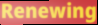
Renewing